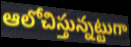
ఆలోచిస్తున్నట్టుగా